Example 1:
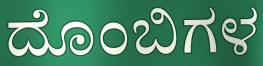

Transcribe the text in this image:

ದೊಂಬಿಗಳ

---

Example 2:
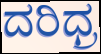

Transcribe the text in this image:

ದರಿಧ್ರ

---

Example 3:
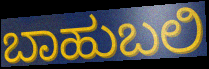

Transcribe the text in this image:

ಬಾಹುಬಲಿ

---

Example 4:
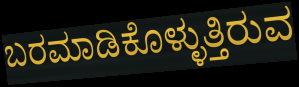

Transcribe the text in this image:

ಬರಮಾಡಿಕೊಳ್ಳುತ್ತಿರುವ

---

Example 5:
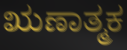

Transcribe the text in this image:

ಋಣಾತ್ಮಕ